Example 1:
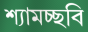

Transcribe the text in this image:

শ্যামচ্ছবি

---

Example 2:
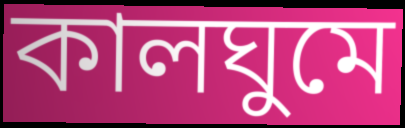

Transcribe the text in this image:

কালঘুমে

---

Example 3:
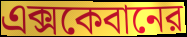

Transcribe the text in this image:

এক্সকেবানের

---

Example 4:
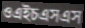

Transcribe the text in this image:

ওএইচএসএস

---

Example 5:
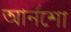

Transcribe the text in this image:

আর্নশো